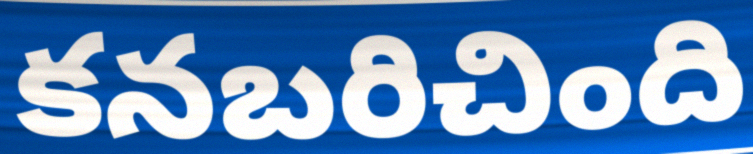
కనబరిచింది